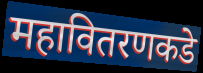
महावितरणकडे